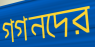
গগনদের